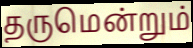
தருமென்றும்